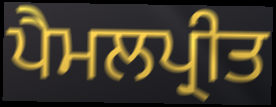
ਪੈਮਲਪ੍ਰੀਤ